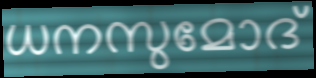
ധനസുമോദ്